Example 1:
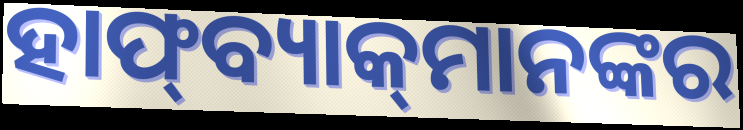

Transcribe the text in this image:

ହାଫ୍‍ବ୍ୟାକ୍‍ମାନଙ୍କର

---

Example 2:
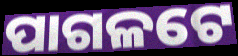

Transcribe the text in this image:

ପାଗଳଟେ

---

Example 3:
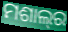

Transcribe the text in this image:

ମଶାଲ୍‌ର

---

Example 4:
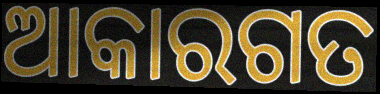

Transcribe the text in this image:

ଆକାରଗତ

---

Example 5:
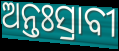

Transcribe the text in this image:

ଅନ୍ତଃସ୍ରାବୀ